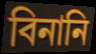
বিনানি